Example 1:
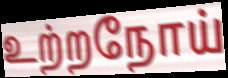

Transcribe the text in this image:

உற்றநோய்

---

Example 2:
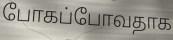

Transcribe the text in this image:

போகப்போவதாக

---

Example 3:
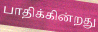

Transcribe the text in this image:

பாதிக்கின்றது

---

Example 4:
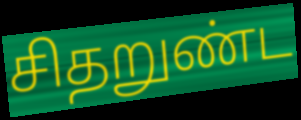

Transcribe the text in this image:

சிதறுண்ட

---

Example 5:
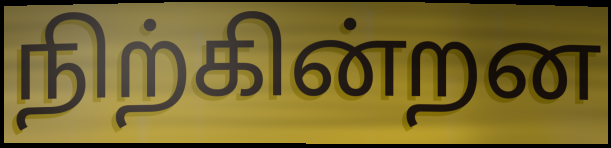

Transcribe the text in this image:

நிற்கின்றன